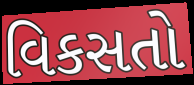
વિકસતો